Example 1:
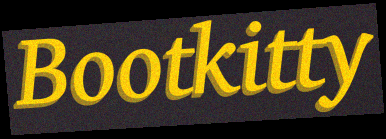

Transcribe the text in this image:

Bootkitty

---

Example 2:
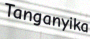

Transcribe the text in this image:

Tanganyika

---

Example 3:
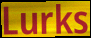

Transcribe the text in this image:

Lurks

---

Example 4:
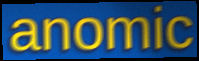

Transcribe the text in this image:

anomic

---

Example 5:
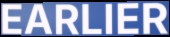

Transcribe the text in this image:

EARLIER